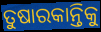
ତୁଷାରକାନ୍ତିକୁ